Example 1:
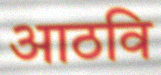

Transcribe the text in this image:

आठवि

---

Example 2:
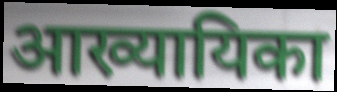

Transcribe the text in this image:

आख्यायिका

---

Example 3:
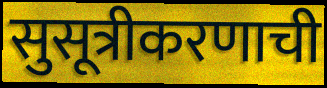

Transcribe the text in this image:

सुसूत्रीकरणाची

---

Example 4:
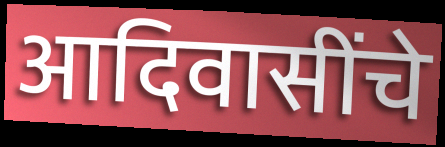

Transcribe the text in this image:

आदिवासींचे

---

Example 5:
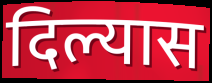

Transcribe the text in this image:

दिल्यास